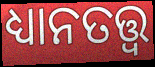
ଧ୍ୟାନତତ୍ତ୍ୱ